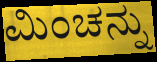
ಮಿಂಚನ್ನು